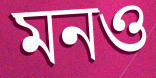
মনও